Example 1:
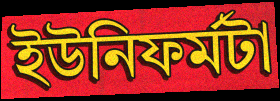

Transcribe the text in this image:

ইউনিফর্মটা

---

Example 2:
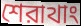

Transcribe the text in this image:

শেরাথাং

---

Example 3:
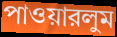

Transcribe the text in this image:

পাওয়ারলুম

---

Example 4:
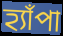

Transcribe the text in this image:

হ্যাঁপা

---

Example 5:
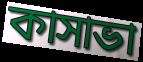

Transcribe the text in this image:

কাসাভা